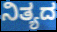
ನಿತ್ಯದ